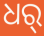
ଧର୍